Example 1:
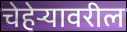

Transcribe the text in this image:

चेहेऱ्यावरील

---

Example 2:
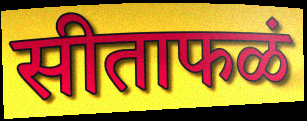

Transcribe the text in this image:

सीताफळं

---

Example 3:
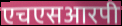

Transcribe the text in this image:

एचएसआरपी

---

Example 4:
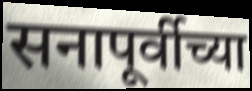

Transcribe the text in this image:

सनापूर्वीच्या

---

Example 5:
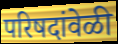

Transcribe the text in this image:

परिषदांवेळी